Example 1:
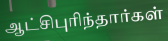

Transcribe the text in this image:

ஆட்சிபுரிந்தார்கள்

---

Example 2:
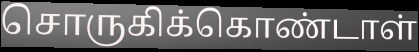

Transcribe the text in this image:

சொருகிக்கொண்டாள்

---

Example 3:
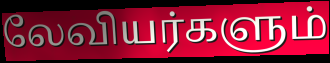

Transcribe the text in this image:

லேவியர்களும்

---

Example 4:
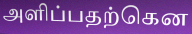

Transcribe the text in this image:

அளிப்பதற்கென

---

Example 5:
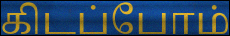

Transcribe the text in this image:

கிடப்போம்